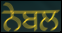
ਨੇਬਲ